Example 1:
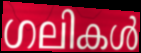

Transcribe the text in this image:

ഗലികൾ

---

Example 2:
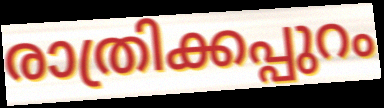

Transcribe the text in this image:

രാത്രിക്കപ്പുറം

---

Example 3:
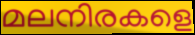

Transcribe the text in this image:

മലനിരകളെ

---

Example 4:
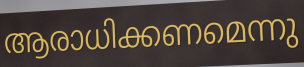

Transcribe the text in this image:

ആരാധിക്കണമെന്നു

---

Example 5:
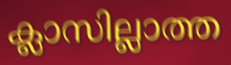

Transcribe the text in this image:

ക്ലാസില്ലാത്ത